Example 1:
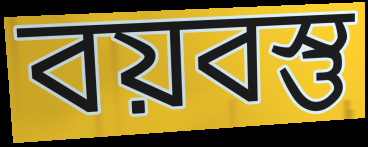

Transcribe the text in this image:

বয়বস্তু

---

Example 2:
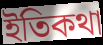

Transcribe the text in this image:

ইতিকথা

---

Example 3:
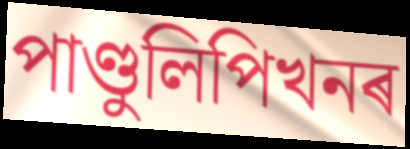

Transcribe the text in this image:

পাণ্ডুলিপিখনৰ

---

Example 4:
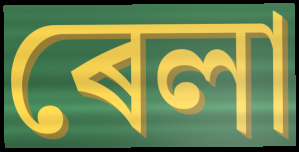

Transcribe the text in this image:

ৰেলা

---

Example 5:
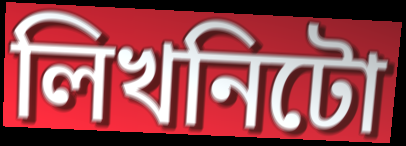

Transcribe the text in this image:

লিখনিটো